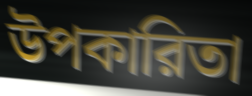
উপকারিতা